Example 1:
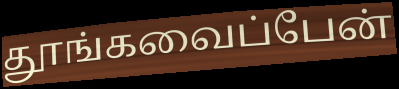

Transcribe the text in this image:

தூங்கவைப்பேன்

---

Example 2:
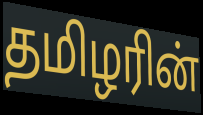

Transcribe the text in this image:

தமிழரின்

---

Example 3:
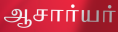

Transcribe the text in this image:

ஆசார்யர்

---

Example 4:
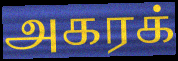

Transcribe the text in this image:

அகரக்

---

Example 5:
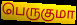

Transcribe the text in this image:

பெருகுமா